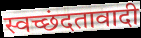
स्वच्छंदतावादी